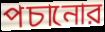
পচানোর